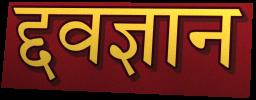
द्दवज्ञान